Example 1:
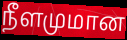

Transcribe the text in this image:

நீளமுமான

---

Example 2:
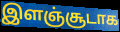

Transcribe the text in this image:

இளஞ்சூடாக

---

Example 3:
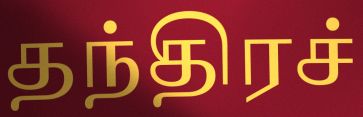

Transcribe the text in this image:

தந்திரச்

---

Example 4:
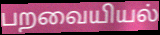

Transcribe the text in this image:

பறவையியல்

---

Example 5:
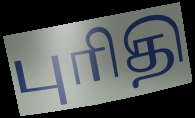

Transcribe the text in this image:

புரிதி